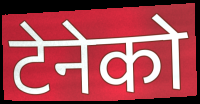
टेनेको